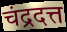
चंद्रदत्त